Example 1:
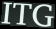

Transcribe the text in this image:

ITG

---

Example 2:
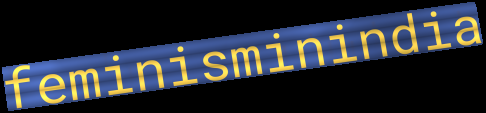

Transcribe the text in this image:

feminisminindia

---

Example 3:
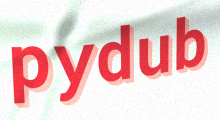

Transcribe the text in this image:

pydub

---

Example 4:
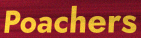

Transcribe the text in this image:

Poachers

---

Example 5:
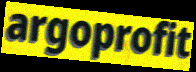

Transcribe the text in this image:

argoprofit